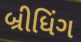
બ્રીધિંગ